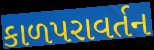
કાળપરાવર્તન